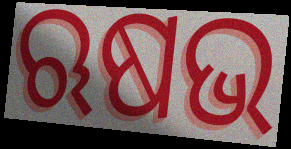
ଋଷଭ